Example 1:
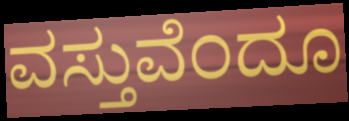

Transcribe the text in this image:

ವಸ್ತುವೆಂದೂ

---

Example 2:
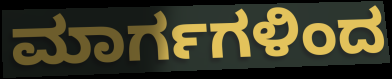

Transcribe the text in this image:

ಮಾರ್ಗಗಳಿಂದ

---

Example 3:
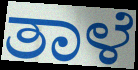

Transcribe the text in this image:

ತಾಳೆ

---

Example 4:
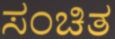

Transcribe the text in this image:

ಸಂಚಿತ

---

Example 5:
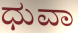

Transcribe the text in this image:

ಧುವಾ